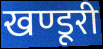
खण्डूरी